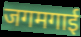
जगमगाई